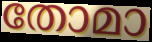
തോമാ